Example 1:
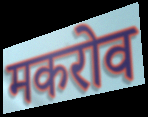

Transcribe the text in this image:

मकरोव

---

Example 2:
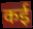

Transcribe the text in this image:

कई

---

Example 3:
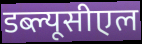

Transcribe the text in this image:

डब्ल्यूसीएल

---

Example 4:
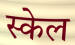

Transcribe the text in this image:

स्केल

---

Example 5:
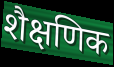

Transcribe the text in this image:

शैक्षणिक